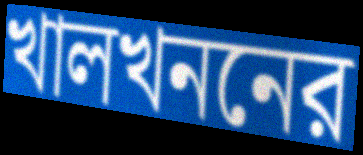
খালখননের